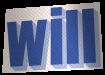
will